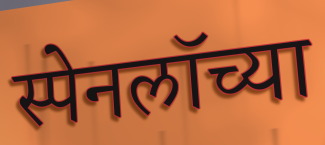
स्पेनलॉच्या